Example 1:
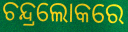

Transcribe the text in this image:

ଚନ୍ଦ୍ରଲୋକରେ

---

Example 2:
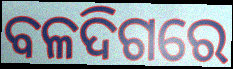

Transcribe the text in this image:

ବଳଦିଗରେ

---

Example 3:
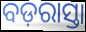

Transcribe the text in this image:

ବଡ଼ରାସ୍ତା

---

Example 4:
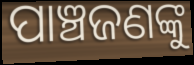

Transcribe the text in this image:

ପାଞ୍ଚଜଣଙ୍କୁ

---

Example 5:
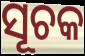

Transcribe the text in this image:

ସୂଚକ